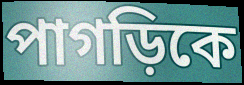
পাগড়িকে